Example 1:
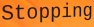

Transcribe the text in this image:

Stopping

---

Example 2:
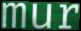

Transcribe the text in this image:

mur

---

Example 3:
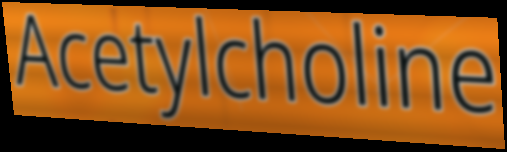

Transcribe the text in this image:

Acetylcholine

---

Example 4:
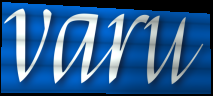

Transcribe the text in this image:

varu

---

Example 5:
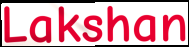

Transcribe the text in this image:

Lakshan